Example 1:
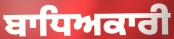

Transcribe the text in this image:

ਬਾਧਿਅਕਾਰੀ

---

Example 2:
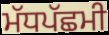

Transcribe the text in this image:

ਮੱਧਪੱਛਮੀ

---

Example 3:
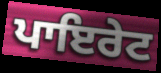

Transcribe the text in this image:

ਪਾਇਰੇਟ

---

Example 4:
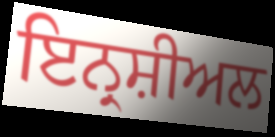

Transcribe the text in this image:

ਇਨ੍ਰਸ਼ੀਅਲ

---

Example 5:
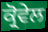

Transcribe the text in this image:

ਕ੍ਰੋਵੇਲ